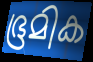
ഭൂമിക